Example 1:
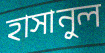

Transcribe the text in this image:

হাসানুল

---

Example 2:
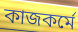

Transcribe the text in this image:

কাজকর্মে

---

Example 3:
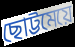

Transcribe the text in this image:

ছোট্টমেয়ে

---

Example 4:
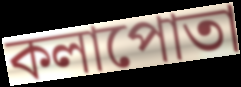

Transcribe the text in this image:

কলাপোতা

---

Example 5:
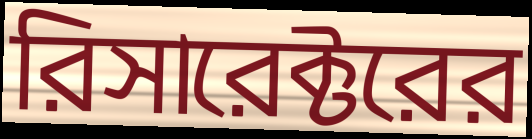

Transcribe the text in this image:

রিসারেক্টরের